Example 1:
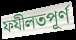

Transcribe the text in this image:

ফযীলতপূর্ণ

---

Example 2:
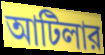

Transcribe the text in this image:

আটিলার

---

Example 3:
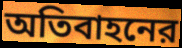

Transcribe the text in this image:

অতিবাহনের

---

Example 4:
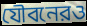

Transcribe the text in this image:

যৌবনেরও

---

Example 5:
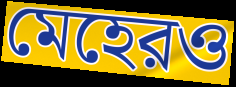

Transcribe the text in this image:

মেহেরও